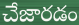
చేజారడం